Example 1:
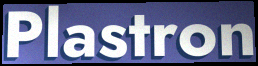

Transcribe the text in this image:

Plastron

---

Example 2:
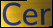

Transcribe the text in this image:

Cer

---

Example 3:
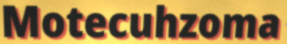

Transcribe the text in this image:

Motecuhzoma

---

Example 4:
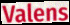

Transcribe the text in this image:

Valens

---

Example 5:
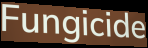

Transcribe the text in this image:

Fungicide